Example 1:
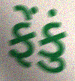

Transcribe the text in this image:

ફેંકું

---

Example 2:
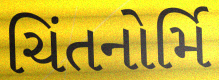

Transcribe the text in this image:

ચિંતનોર્મિ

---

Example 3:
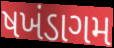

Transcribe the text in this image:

ષખંડાગમ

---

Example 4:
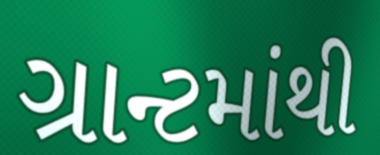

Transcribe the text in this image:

ગ્રાન્ટમાંથી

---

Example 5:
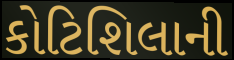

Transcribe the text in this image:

કોટિશિલાની